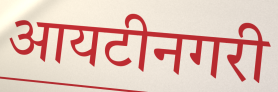
आयटीनगरी